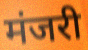
मंजरी